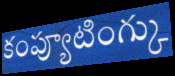
కంప్యూటింగ్కు